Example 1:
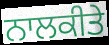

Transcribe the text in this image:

ਨਾਲਕੀਤੇ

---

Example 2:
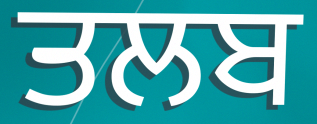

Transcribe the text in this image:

ਤਲਬ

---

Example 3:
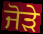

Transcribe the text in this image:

ਜੋੜੇ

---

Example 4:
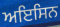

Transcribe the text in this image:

ਅਇਸਿਨ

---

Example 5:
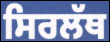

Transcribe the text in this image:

ਸਿਰਲੱਥ